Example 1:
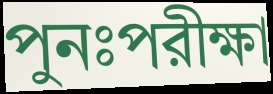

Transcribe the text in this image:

পুনঃপরীক্ষা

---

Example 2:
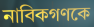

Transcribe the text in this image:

নাবিকগণকে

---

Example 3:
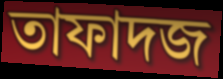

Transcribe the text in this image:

তাফাদজ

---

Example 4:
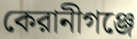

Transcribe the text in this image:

কেরানীগঞ্জে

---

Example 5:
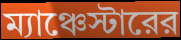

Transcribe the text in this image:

ম্যাঞ্চেস্টারের